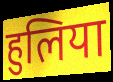
हुलिया